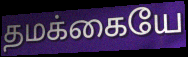
தமக்கையே